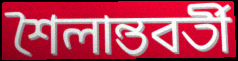
শৈলান্তবর্তী